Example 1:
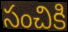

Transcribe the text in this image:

సంచికి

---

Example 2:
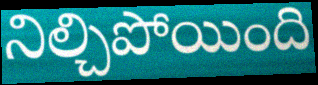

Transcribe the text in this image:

నిల్చిపోయింది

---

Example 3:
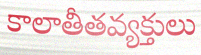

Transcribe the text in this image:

కాలాతీతవ్యక్తులు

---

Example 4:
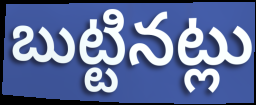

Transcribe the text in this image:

బుట్టినట్లు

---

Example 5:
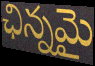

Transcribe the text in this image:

ఛిన్నమై